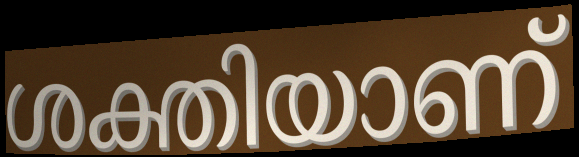
ശക്തിയാണ്